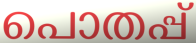
പൊതപ്പ്